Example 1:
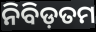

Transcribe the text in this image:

ନିବିଡ଼ତମ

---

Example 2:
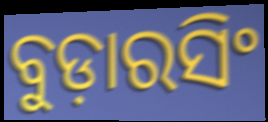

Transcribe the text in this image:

ବୁଡ଼ାରସିଂ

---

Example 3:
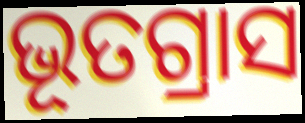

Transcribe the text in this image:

ଭୂତଗ୍ରାସ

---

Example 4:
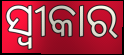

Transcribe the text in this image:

ସ୍ବୀକାର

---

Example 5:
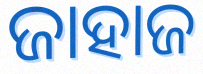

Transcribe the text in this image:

ଜାହାଜ